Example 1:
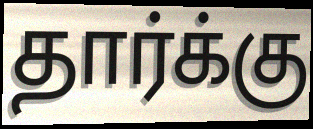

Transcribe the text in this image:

தார்க்கு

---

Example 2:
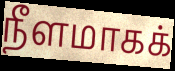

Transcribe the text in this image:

நீளமாகக்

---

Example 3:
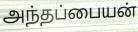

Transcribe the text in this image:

அந்தப்பையன்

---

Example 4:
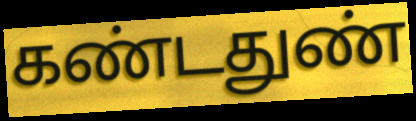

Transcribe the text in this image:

கண்டதுண்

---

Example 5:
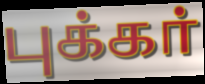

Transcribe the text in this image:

புக்கர்